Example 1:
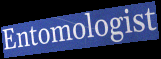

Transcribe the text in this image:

Entomologist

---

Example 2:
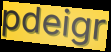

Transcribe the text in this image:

pdeigr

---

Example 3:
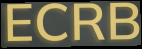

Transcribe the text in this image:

ECRB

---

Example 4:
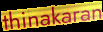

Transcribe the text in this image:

thinakaran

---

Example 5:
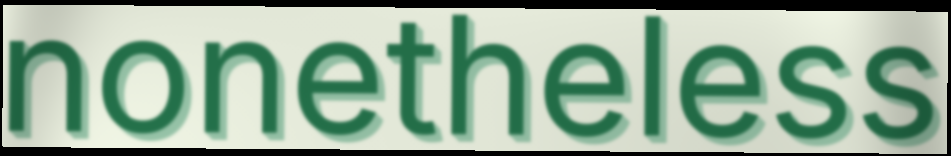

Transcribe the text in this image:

nonetheless